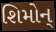
શિમોન્